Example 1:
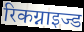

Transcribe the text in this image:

रिकग्नाइज्ड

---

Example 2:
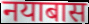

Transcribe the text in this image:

नयाबास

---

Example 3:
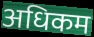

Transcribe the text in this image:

अधिकम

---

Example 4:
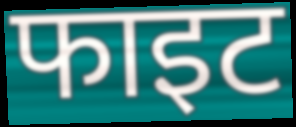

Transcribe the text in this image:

फाइट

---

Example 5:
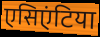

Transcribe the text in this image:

एसिएंटिया